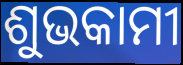
ଶୁଭକାମୀ